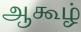
ஆகூழ்